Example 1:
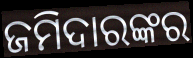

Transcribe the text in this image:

ଜମିଦାରଙ୍କର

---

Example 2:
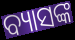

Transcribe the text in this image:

ବ୍ୟାସଙ୍କ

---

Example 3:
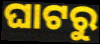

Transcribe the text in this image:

ଘାଟରୁ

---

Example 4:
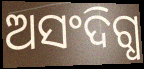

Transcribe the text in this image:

ଅସଂଦିଗ୍ଧ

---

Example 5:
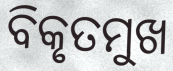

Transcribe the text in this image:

ବିକୃତମୁଖ